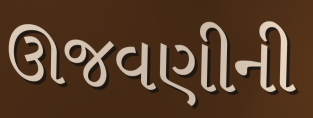
ઊજવણીની